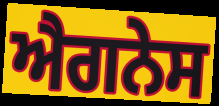
ਐਗਨੇਸ